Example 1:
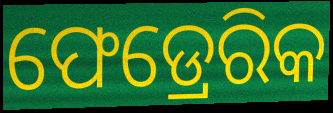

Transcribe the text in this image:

ଫେଡ୍ରେରିକ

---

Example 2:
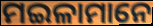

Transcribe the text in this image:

ମଇଳାମାନେ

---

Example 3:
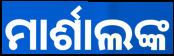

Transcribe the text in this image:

ମାର୍ଶାଲଙ୍କ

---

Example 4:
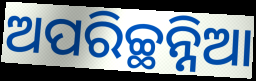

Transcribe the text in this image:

ଅପରିଚ୍ଛନ୍ନିଆ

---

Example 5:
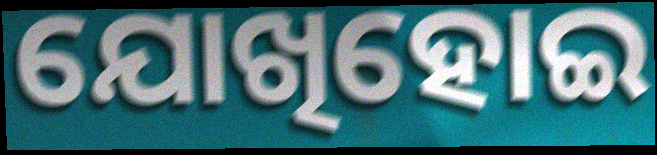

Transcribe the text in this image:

ଯୋଖିହୋଇ